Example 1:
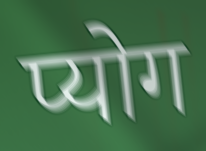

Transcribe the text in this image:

प्योग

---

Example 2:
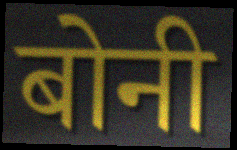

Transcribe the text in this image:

बोनी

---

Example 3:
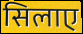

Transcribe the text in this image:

सिलाए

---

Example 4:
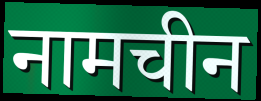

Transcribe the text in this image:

नामचीन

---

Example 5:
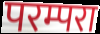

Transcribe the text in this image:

परम्परा